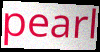
pearl